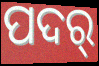
ପଦର୍